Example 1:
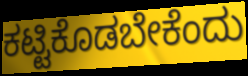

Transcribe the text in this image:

ಕಟ್ಟಿಕೊಡಬೇಕೆಂದು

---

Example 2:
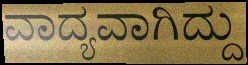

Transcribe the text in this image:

ವಾದ್ಯವಾಗಿದ್ದು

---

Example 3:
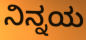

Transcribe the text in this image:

ನಿನ್ನಯ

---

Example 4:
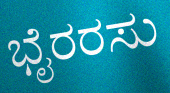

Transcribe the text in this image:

ಭೈರರಸು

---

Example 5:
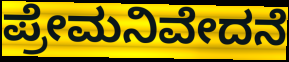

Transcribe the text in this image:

ಪ್ರೇಮನಿವೇದನೆ